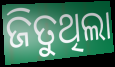
ଜିତୁଥିଲା